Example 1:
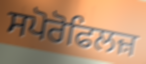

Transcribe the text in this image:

ਸਪੋਰੋਫਿਲਜ਼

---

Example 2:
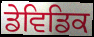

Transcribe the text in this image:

ਡੇਵਿਡਿਕ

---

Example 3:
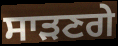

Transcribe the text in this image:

ਸਾੜਣਗੇ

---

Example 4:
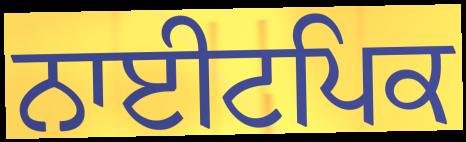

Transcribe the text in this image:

ਨਾਈਟਪਿਕ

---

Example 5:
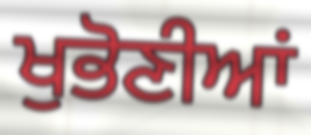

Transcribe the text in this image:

ਖੁਭੋਣੀਆਂ